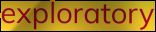
exploratory